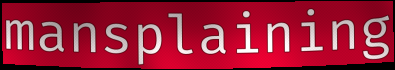
mansplaining